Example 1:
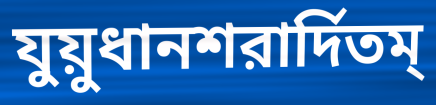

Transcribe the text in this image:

যুয়ুধানশরার্দিতম্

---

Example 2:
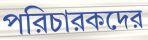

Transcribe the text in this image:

পরিচারকদের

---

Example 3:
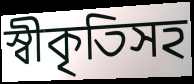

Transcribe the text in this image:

স্বীকৃতিসহ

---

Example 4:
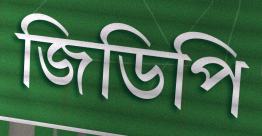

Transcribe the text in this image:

জিডিপি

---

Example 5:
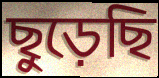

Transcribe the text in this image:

ছুড়েছি